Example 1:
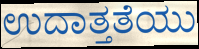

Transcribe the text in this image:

ಉದಾತ್ತತೆಯು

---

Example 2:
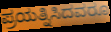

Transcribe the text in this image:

ಪ್ರಯತ್ನಿಸಿದವರೂ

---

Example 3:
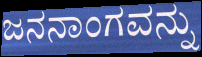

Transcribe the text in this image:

ಜನನಾಂಗವನ್ನು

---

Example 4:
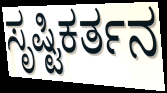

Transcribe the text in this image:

ಸೃಷ್ಟಿಕರ್ತನ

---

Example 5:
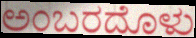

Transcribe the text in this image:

ಅಂಬರದೊಳು